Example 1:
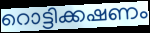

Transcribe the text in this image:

റൊട്ടിക്കഷണം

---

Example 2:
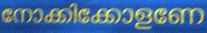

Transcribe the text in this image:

നോക്കിക്കോളണേ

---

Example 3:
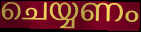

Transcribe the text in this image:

ചെയ്യണം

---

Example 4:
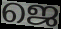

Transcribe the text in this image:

ജെ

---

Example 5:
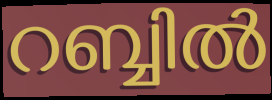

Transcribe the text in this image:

റബ്ബിൽ